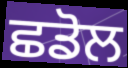
ਛਡੋਲ